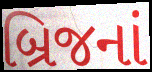
બ્રિજનાં